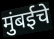
मुंबईचे